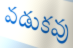
వడుకవు